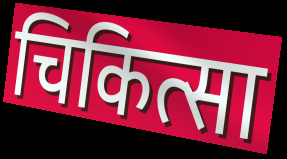
चिकित्सा